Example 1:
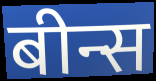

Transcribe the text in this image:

बीन्‍स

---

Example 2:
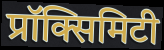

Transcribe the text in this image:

प्रॉक्सिमिटी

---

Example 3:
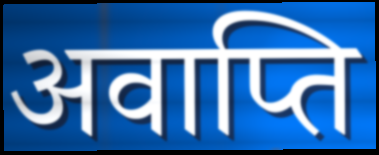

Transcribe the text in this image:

अवाप्ति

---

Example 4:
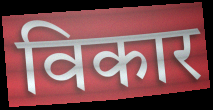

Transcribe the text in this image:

विकार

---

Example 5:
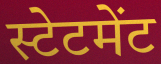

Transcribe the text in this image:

स्टेटमेंट